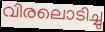
വിരലൊടിച്ചു